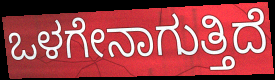
ಒಳಗೇನಾಗುತ್ತಿದೆ